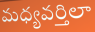
మధ్యవర్తిలా